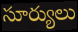
సూర్యులు